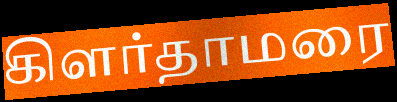
கிளர்தாமரை